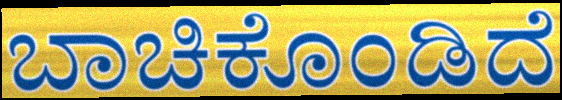
ಬಾಚಿಕೊಂಡಿದೆ